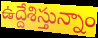
ఉద్దేశిస్తున్నాం